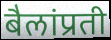
बैलांप्रती